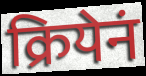
क्रियेनं